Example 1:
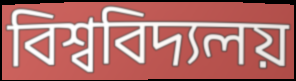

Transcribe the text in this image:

বিশ্ববিদ্যলয়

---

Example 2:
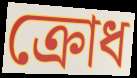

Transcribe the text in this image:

ক্ৰোধ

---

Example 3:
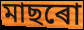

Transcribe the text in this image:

মাছৰো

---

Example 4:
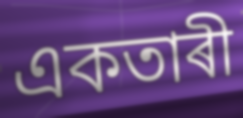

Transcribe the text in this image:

একতাৰী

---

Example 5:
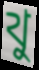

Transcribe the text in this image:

থু